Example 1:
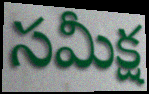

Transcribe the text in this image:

సమీక్ష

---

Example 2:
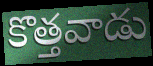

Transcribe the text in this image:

కొత్తవాడు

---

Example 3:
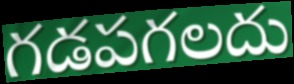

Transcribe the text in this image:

గడపగలదు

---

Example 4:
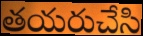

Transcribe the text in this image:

తయరుచేసి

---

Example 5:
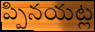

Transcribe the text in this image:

ప్పినయట్ల